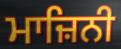
ਮਾਜ਼ਿਨੀ